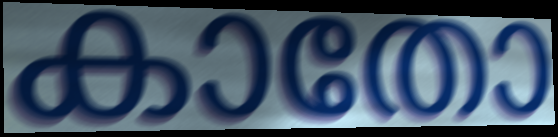
കാതോ